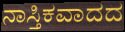
ನಾಸ್ತಿಕವಾದದ